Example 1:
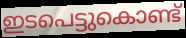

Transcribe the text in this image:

ഇടപെട്ടുകൊണ്ട്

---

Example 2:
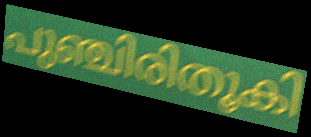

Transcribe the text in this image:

പുഞ്ചിരിതൂകി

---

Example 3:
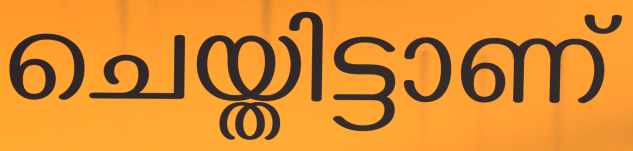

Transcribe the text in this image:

ചെയ്തിട്ടാണ്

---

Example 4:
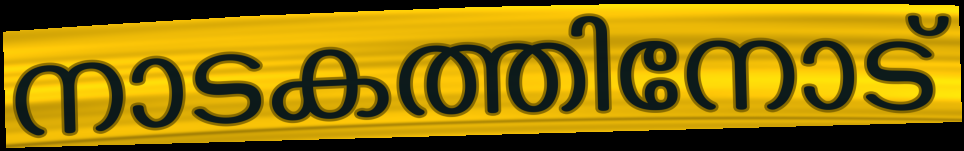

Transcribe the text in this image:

നാടകത്തിനോട്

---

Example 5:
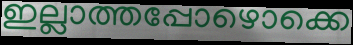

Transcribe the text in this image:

ഇല്ലാത്തപ്പോഴൊക്കെ